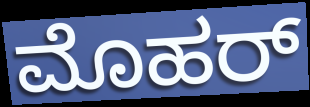
ಮೊಹರ್